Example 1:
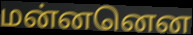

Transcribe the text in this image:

மன்னனென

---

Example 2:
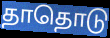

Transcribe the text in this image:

தாதொடு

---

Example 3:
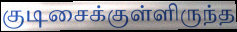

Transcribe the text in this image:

குடிசைக்குள்ளிருந்த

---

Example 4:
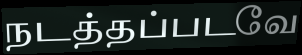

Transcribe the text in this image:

நடத்தப்படவே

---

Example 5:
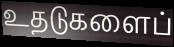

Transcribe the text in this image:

உதடுகளைப்